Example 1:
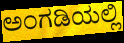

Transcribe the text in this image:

ಅಂಗಡಿಯಲ್ಲಿ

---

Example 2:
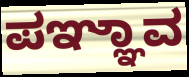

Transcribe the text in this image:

ಪಞ್ಞಾವ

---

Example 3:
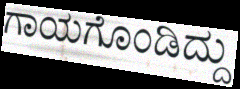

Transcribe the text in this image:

ಗಾಯಗೊಂಡಿದ್ದು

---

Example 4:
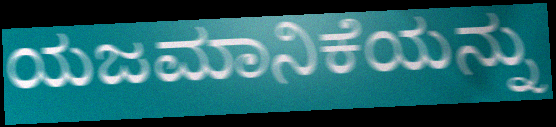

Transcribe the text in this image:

ಯಜಮಾನಿಕೆಯನ್ನು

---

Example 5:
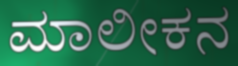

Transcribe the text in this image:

ಮಾಲೀಕನ